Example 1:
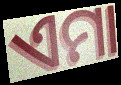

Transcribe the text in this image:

ଏମା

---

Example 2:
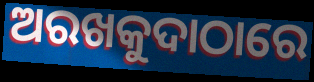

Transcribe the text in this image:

ଅରଖକୁଦାଠାରେ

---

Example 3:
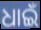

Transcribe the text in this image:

ଧାଇଁ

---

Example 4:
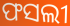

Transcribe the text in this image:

ଫସଲୀ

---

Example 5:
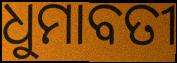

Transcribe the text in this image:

ଧୁମାବତୀ